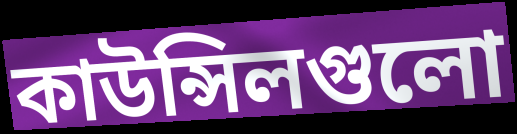
কাউন্সিলগুলো